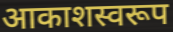
आकाशस्वरूप